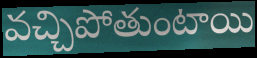
వచ్చిపోతుంటాయి